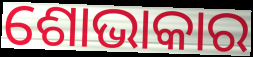
ଶୋଭାକାର